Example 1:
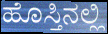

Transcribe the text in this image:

ಹೊಸ್ತಿನಲ್ಲಿ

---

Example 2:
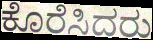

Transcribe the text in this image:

ಕೊರೆಸಿದರು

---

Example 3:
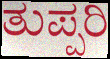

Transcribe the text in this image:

ತುಪ್ಪರಿ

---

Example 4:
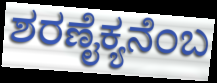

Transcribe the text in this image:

ಶರಣೈಕ್ಯನೆಂಬ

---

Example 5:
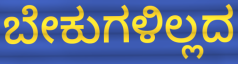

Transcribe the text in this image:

ಬೇಕುಗಳಿಲ್ಲದ